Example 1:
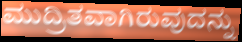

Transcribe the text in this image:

ಮುದ್ರಿತವಾಗಿರುವುದನ್ನು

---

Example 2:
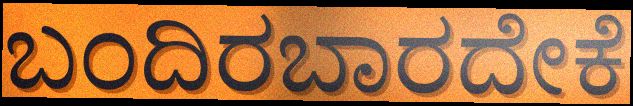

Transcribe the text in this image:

ಬಂದಿರಬಾರದೇಕೆ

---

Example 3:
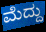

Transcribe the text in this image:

ಮೆದ್ದು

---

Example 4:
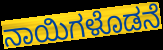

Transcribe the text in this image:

ನಾಯಿಗಳೊಡನೆ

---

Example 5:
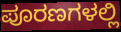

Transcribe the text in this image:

ಪೂರಣಗಳಲ್ಲಿ